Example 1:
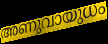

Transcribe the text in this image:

അണുവായുധം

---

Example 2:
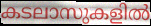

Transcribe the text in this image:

കടലാസുകളിൽ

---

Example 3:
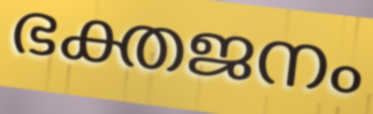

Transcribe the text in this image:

ഭക്തജനം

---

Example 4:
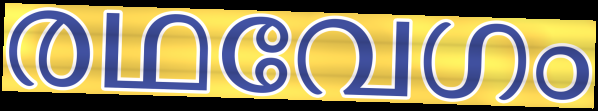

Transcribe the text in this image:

രഥവേഗം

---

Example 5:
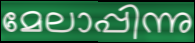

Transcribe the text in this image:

മേലാപ്പിന്നു